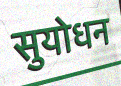
सुयोधन